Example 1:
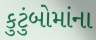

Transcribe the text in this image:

કુટુંબોમાંના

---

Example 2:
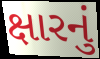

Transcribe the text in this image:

ક્ષારનું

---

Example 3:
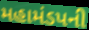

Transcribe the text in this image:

મહામંડપની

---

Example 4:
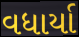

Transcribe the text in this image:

વધાર્યા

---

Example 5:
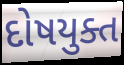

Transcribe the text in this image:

દોષયુક્ત